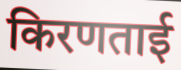
किरणताई